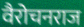
वैरोचनराज